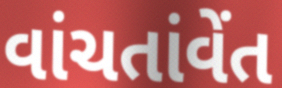
વાંચતાંવેંત